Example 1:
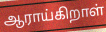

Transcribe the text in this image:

ஆராய்கிறாள்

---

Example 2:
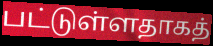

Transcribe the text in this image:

பட்டுள்ளதாகத்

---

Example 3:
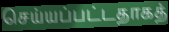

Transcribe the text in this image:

செய்யப்பட்டதாகத்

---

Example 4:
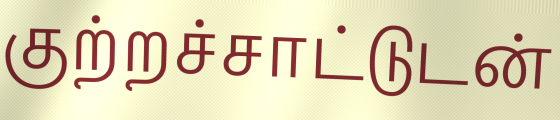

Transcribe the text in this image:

குற்றச்சாட்டுடன்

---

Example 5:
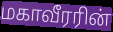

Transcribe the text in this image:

மகாவீரரின்